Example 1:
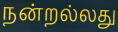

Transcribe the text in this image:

நன்றல்லது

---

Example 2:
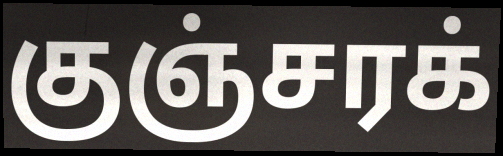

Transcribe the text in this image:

குஞ்சரக்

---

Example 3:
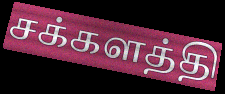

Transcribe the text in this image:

சக்களத்தி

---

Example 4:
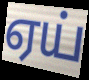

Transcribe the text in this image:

ஏய்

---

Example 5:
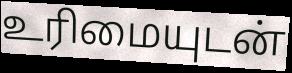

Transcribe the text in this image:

உரிமையுடன்